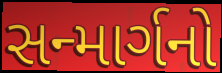
સન્માર્ગનો